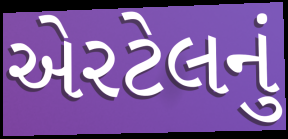
એરટેલનું